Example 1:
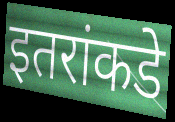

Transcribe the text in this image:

इतरांकडे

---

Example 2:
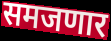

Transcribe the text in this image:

समजणार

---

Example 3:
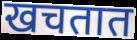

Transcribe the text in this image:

खचतात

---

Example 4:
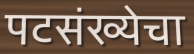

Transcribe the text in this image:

पटसंख्येचा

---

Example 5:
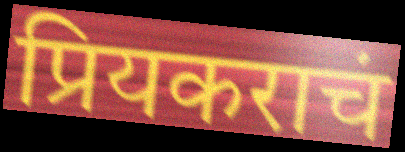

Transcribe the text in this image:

प्रियकराचं